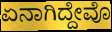
ಏನಾಗಿದ್ದೇವೊ